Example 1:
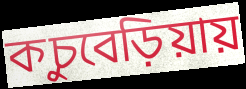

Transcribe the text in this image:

কচুবেড়িয়ায়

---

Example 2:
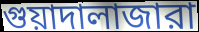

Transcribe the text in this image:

গুয়াদালাজারা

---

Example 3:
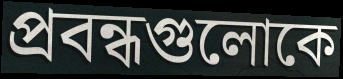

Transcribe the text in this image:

প্রবন্ধগুলোকে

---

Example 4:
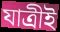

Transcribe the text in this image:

যাত্রীই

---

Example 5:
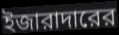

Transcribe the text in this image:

ইজারাদারের